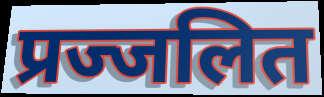
प्रज्जलित